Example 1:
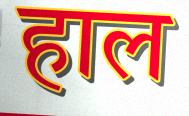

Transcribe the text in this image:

हाल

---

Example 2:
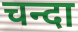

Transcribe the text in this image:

चन्दा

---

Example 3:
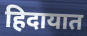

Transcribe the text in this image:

हिदायात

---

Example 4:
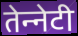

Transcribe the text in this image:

तेन्नेटी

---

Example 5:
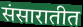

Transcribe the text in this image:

संसारातीत